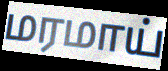
மரமாய்